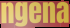
ngena